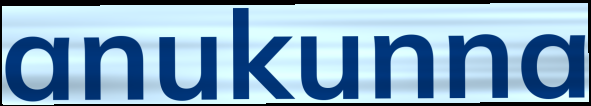
anukunna